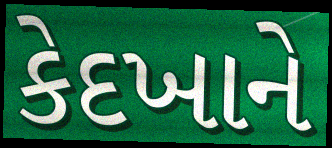
કેદખાને